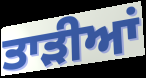
ਤਾੜੀਆਂ